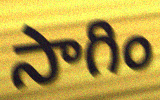
సాగిం